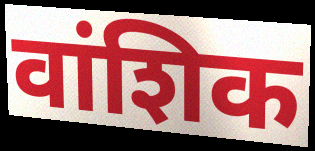
वांशिक